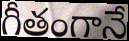
గీతంగానే